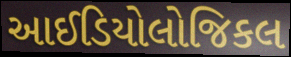
આઈડિયોલોજિકલ